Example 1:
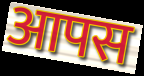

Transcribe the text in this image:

आपस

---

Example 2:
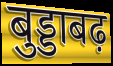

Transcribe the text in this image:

बुड्डाबढ़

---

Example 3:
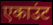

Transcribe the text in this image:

एकाउंट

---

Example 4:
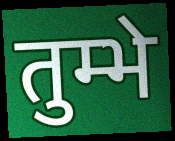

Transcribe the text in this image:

तुम्भे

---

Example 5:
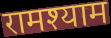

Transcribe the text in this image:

रामश्याम